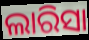
ଲାରିସା